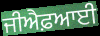
ਜੀਐਫ਼ਆਈ